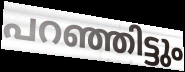
പറഞ്ഞിട്ടും